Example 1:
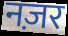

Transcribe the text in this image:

नज़र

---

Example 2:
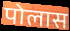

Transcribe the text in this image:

पोलास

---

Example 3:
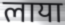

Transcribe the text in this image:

लाया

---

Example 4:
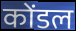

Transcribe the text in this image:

कोंडल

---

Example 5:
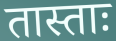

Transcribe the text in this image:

तास्ताः